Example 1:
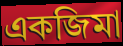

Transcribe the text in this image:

একজিমা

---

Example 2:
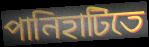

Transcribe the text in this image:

পানিহাটিতে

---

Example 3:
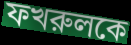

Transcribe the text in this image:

ফখরুলকে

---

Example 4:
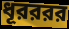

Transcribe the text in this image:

ধূরররর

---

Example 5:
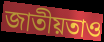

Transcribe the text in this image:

জাতীয়তাও